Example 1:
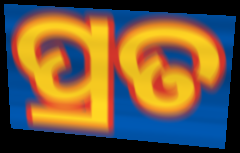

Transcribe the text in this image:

ପ୍ରତ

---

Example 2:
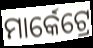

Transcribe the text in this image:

ମାର୍କେଟ୍ରେ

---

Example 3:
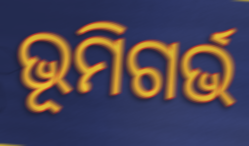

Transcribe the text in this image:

ଭୂମିଗର୍ଭ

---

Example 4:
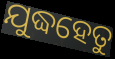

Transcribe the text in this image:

ଯୁଦ୍ଧହେତୁ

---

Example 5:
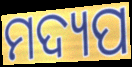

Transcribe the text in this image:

ମଦ୍ୟପ